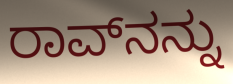
ರಾವ್‌ನನ್ನು